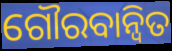
ଗୌରବାନ୍ୱିତ